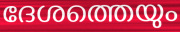
ദേശത്തെയും